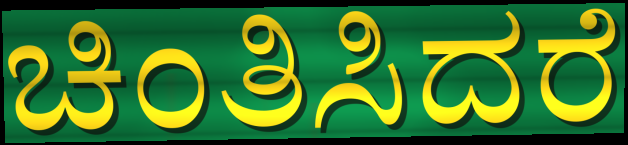
ಚಿಂತಿಸಿದರೆ